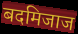
बदमिजाज